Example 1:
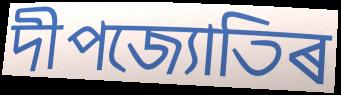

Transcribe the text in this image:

দীপজ্যোতিৰ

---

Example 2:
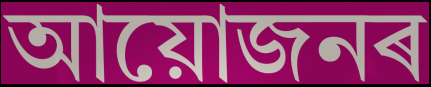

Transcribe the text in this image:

আয়োজনৰ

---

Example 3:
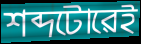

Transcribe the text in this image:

শব্দটোৱেই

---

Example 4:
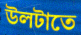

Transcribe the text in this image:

উলটাতে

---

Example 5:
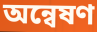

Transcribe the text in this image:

অন্বেষণ